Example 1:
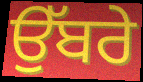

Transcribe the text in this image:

ਉੱਬਰੇ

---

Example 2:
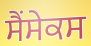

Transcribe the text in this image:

ਸੈਂਸੇਕਸ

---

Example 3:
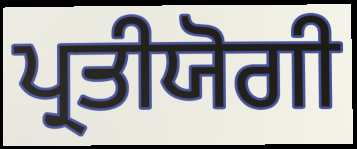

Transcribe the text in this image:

ਪ੍ਰਤੀਯੋਗੀ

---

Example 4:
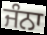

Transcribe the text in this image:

ਜੰਨਾ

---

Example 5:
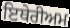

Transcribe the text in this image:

ਇਥੇਰੀਅਮ